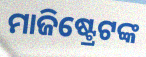
ମାଜିଷ୍ଟ୍ରେଟଙ୍କ